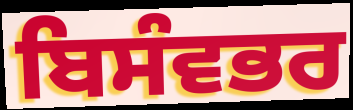
ਬਿਸੰਵਭਰ